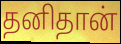
தனிதான்